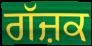
ਗੱਜ਼ਕ